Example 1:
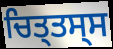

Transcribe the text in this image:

ਚਿਤ੍ਤਸ੍ਸ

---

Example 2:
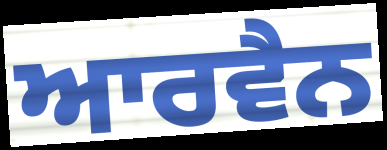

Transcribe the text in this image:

ਆਰਵੈਨ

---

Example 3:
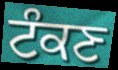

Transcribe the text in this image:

ਟੰਕਣ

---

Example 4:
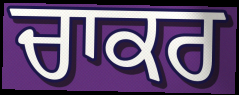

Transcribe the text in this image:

ਚਾਕਰ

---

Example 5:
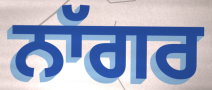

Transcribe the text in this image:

ਨਾੱਗਰ